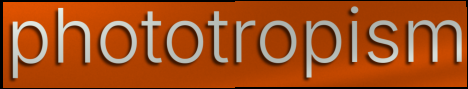
phototropism